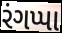
રંગપ્પા